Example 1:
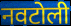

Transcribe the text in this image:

नवटोली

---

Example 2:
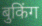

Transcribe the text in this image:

बुकिंग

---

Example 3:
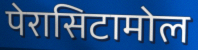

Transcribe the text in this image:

पेरासिटामोल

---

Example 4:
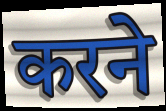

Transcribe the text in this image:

करने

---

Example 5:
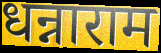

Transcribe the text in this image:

धन्नाराम